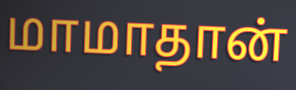
மாமாதான்